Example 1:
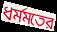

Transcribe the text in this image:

ধর্মমতের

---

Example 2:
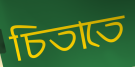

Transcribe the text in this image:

চিতাতে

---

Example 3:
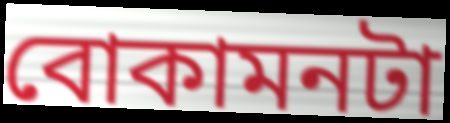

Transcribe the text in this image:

বোকামনটা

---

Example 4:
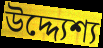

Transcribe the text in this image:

উদ্দ্যেশ্য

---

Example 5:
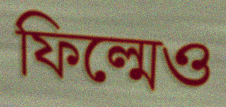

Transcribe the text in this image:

ফিল্মেও